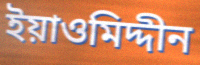
ইয়াওমিদ্দীন